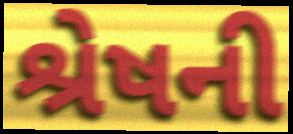
શ્રેષની